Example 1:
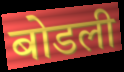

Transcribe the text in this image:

बोडली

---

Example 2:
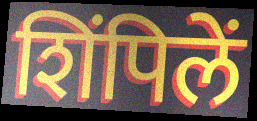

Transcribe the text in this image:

शिंपिलें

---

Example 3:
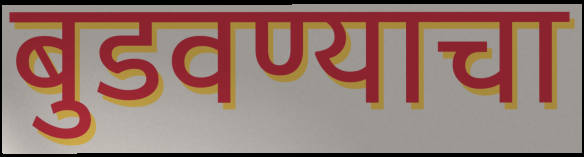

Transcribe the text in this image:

बुडवण्याचा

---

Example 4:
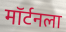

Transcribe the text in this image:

मॉर्टनला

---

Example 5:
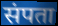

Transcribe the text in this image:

संपता